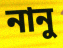
নানু